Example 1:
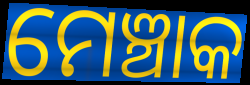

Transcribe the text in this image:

ମେଞ୍ଚାକ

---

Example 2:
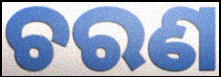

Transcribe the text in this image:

ଚରଣ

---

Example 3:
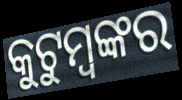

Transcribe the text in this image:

କୁଟୁମ୍ବଙ୍କର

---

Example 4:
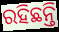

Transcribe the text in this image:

ରହିଛନ୍ତି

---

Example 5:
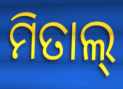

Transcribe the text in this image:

ମିତାଲ୍